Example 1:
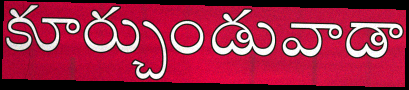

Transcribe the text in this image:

కూర్చుండువాడా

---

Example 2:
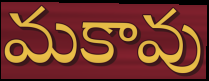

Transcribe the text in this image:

మకావు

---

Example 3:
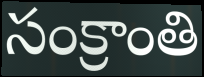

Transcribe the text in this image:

సంక్రాంతి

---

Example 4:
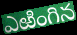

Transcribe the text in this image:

ఎఱింగిన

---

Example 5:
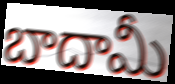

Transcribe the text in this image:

బాదామీ